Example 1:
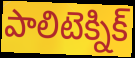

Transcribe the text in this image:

పాలిటెక్నిక్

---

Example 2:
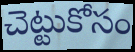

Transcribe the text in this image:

చెట్టుకోసం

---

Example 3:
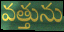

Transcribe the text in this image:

వత్తును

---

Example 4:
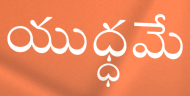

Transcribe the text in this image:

యుధ్ధమే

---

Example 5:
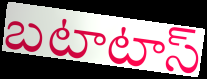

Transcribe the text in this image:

బటాటాస్